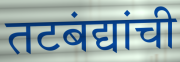
तटबंद्यांची